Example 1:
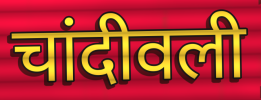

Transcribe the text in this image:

चांदीवली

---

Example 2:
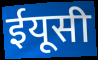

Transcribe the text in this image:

ईयूसी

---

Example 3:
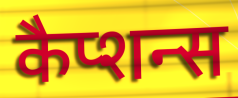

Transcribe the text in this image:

कैप्शन्स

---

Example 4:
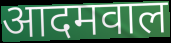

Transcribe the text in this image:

आदमवाल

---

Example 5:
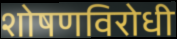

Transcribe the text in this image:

शोषणविरोधी